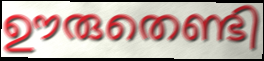
ഊരുതെണ്ടി